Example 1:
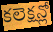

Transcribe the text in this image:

కలెక్షన్లో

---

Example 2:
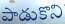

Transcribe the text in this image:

పాడుకొని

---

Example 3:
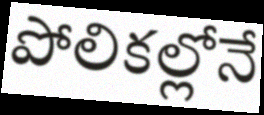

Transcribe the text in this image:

పోలికల్లోనే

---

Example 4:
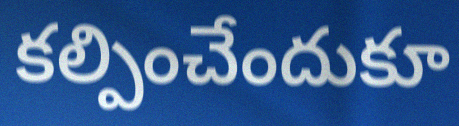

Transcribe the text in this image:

కల్పించేందుకూ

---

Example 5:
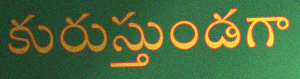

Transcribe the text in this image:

కురుస్తుండగా